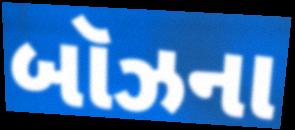
બૉઝના